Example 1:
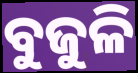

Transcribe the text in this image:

ବୁଜୁଳି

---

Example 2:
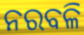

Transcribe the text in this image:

ନରବଳି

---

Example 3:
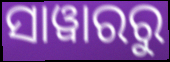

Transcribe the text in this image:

ସାୱାରରୁ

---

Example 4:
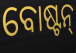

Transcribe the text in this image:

ବୋଷ୍ଟନ୍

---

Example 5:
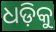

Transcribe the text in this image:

ଧଡ଼ିକୁ